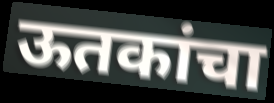
ऊतकांचा